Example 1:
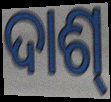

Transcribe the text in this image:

ଦାଶ୍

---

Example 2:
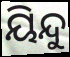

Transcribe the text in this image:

ୟିନ୍ଦୁ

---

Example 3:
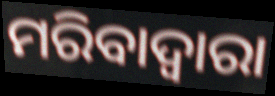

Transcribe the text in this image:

ମରିବାଦ୍ୱାରା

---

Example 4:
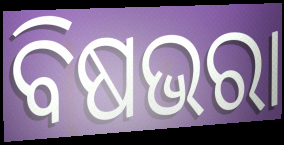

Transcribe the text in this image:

ବିଷଭରା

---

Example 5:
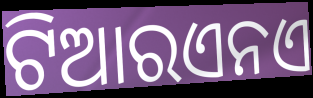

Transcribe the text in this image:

ଟିଆରଏନଏ